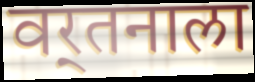
वर्तनाला